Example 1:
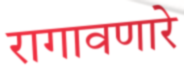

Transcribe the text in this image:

रागावणारे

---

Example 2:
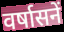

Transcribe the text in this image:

वर्षासनें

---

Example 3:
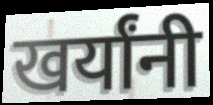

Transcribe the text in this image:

खर्यांनी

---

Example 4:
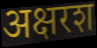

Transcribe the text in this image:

अक्षरश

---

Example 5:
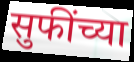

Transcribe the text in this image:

सुफींच्या